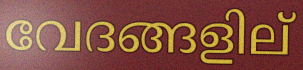
വേദങ്ങളില്